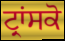
ਟ੍ਰਾਂਸਕੋ